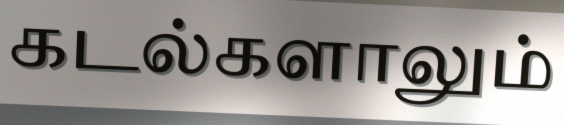
கடல்களாலும்